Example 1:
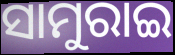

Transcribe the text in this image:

ସାମୁରାଇ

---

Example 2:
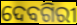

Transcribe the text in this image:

ଦେବଗିରୀ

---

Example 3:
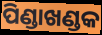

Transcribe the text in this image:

ପିଣ୍ଡାଖଣ୍ଡକ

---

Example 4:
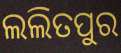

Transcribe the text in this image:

ଲଲିତପୁର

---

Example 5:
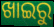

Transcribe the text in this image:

ଖାଇରୁ